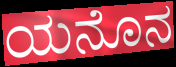
ಯನೊನ